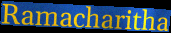
Ramacharitha